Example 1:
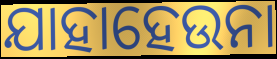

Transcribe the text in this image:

ଯାହାହେଉନା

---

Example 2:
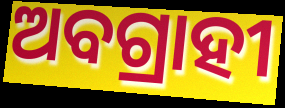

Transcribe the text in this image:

ଅବଗ୍ରାହୀ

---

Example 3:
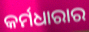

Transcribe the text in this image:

କର୍ମଧାରାର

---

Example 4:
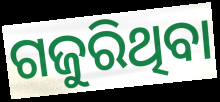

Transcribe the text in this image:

ଗଜୁରିଥିବା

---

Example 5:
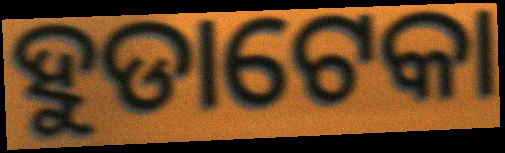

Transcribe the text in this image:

ହୁଡାଟେକା